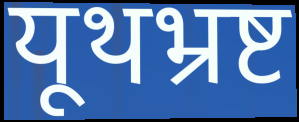
यूथभ्रष्ट